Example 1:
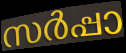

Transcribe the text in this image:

സർപ്പാ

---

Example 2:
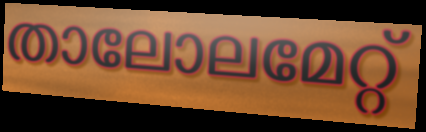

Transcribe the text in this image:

താലോലമേറ്റ്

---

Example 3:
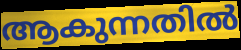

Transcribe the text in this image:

ആകുന്നതിൽ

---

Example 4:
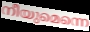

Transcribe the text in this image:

നീയുമെന്നെ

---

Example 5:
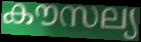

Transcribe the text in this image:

കൗസല്യ